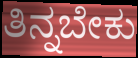
ತಿನ್ನಬೇಕು